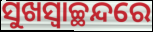
ସୁଖସ୍ୱାଚ୍ଛନ୍ଦରେ